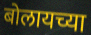
बोलायच्या